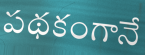
పథకంగానే